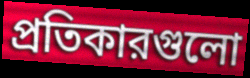
প্রতিকারগুলো